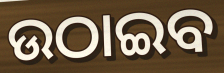
ଉଠାଇବ